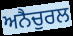
ਅਨੈਚੁਰਲ